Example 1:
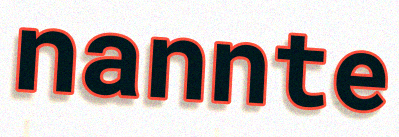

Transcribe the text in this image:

nannte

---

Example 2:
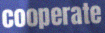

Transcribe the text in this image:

cooperate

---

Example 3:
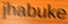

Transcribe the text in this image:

jhabuke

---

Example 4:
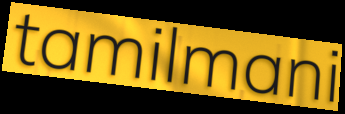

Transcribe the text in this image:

tamilmani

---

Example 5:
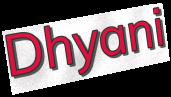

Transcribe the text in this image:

Dhyani